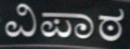
ವಿಪಾಠ